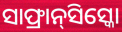
ସାଫ୍ରାନ୍‌ସିସ୍କୋ